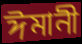
ঈমানী